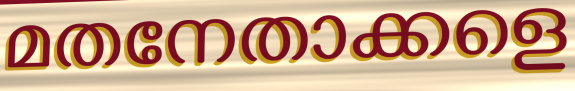
മതനേതാക്കളെ